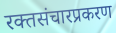
रक्तसंचारप्रकरण